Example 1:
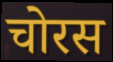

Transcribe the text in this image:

चोरस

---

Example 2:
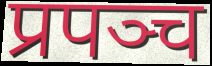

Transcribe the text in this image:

प्रपञ्च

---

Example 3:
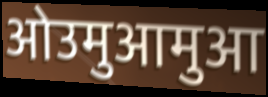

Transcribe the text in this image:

ओउमुआमुआ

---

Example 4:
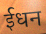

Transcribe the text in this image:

ईधन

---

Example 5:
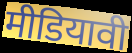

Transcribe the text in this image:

मीडियावी